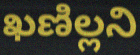
ఖణిల్లని